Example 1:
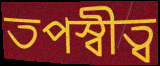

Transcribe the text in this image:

তপস্বীত্ব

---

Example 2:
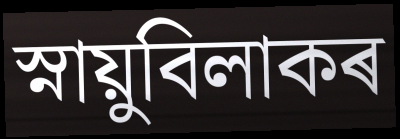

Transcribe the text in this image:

স্নায়ুবিলাকৰ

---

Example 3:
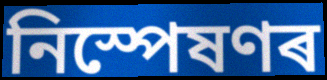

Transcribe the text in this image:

নিস্পেষণৰ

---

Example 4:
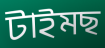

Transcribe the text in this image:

টাইমছ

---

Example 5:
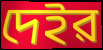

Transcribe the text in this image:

দেইৱ